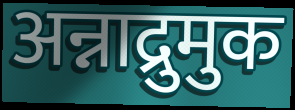
अन्नाद्रुमुक